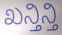
ಖನ್ತಿನ್ತಿ